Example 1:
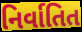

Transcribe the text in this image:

નિર્વાતિત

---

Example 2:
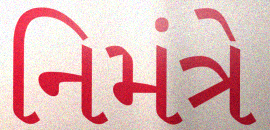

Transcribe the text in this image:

નિમંત્રે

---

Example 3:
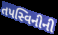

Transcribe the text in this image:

તપસ્વિનીની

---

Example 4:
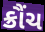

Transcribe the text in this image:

ક્રૌંચ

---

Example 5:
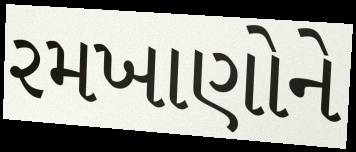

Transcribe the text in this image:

રમખાણોને